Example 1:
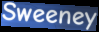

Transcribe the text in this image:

Sweeney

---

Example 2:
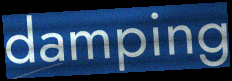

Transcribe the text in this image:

damping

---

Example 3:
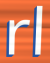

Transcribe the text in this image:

rl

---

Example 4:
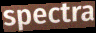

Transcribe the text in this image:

spectra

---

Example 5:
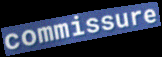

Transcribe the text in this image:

commissure